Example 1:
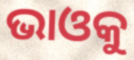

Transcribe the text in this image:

ଭାଓକୁ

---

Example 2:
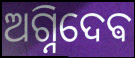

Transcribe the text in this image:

ଅଗ୍ନିଦେଵ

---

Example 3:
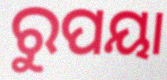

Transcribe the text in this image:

ରୁପୟା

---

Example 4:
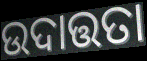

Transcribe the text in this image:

ଉଦାତ୍ତତା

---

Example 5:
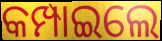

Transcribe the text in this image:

କମ୍ପାଇଲେ